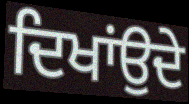
ਦਿਖਾਂਉਦੇ